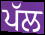
ਪੱਲ